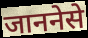
जाननेसे